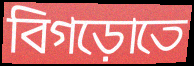
বিগড়োতে